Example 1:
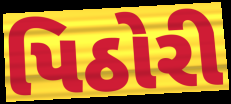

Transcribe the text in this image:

પિઠોરી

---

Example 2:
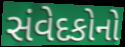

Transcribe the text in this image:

સંવેદકોનો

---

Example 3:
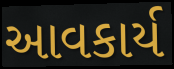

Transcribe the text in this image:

આવકાર્ય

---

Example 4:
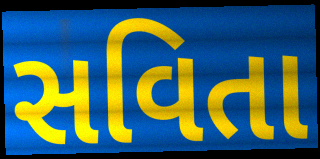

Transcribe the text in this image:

સવિતા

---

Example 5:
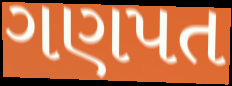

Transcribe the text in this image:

ગણપત